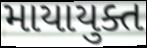
માયાયુક્ત